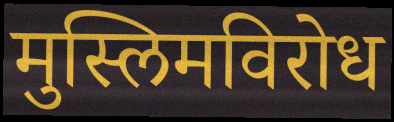
मुस्लिमविरोध